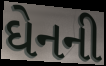
ઘેનની